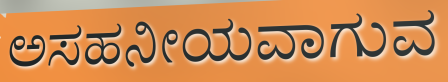
ಅಸಹನೀಯವಾಗುವ